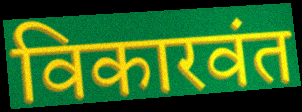
विकारवंत